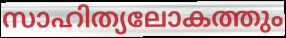
സാഹിത്യലോകത്തും